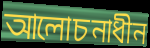
আলোচনাধীন